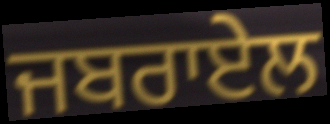
ਜਬਰਾਏਲ